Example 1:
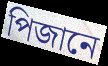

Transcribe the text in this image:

পিজানে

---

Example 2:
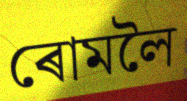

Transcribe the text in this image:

ৰোমলৈ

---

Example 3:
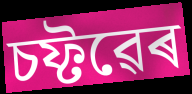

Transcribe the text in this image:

চফ্টৱেৰ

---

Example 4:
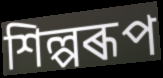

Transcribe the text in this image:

শিল্পৰূপ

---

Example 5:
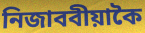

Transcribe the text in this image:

নিজাববীয়াকৈ